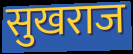
सुखराज